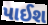
પાઈશ